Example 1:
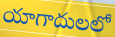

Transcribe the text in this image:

యాగాదులలో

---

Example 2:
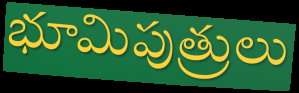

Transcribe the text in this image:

భూమిపుత్రులు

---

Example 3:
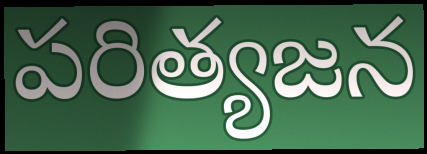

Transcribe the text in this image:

పరిత్యజన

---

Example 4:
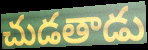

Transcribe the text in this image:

చుడతాడు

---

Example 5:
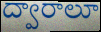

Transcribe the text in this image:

ద్వారాలూ